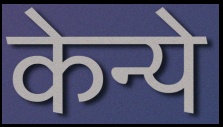
केन्ये